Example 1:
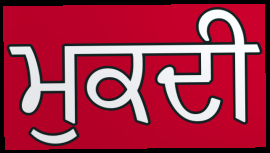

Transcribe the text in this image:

ਮੁਕਦੀ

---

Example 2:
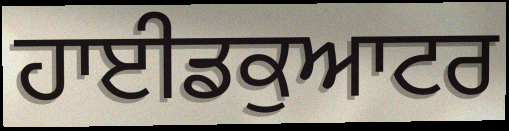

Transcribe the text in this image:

ਹਾਈਡਕੁਆਟਰ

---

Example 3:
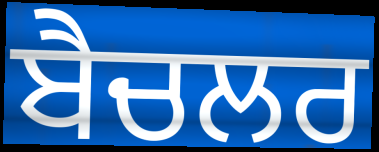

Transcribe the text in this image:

ਬੈਚਲਰ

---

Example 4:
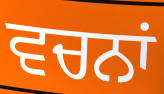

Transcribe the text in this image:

ਵਚਨਾਂ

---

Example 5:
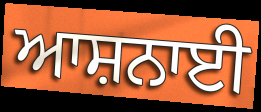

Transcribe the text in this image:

ਆਸ਼ਨਾਈ